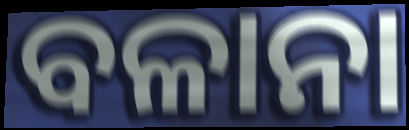
ବଳାନା